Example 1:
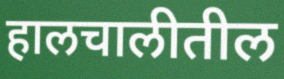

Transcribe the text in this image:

हालचालीतील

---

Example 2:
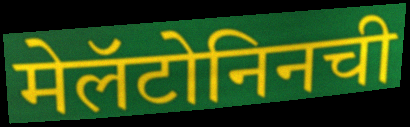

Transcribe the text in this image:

मेलॅटोनिनची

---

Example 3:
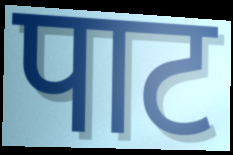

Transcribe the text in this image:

पाट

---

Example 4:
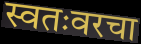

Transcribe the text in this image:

स्वतःवरचा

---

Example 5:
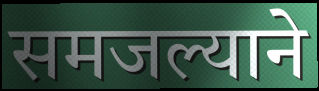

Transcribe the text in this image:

समजल्याने